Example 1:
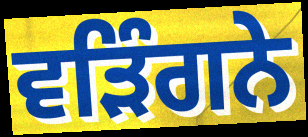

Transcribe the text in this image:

ਵੜਿੰਗਨੇ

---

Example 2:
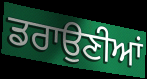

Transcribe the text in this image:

ਡਰਾਉਣੀਆਂ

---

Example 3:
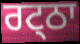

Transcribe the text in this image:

ਰਟ੍ਠਾ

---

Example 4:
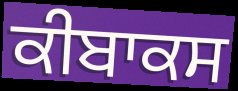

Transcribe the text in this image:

ਕੀਬਾਕਸ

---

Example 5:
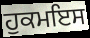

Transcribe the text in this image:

ਹੁਕਮਇਸ